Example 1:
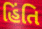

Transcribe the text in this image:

હિંતિ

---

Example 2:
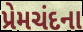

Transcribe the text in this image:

પ્રેમચંદના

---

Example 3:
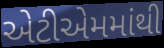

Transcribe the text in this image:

એટીએમમાંથી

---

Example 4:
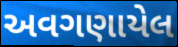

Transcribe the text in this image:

અવગણાયેલ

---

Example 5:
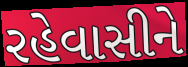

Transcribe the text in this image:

રહેવાસીને